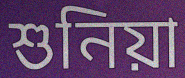
শুনিয়া